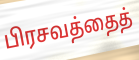
பிரசவத்தைத்